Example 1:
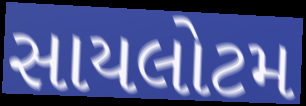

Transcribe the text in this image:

સાયલોટમ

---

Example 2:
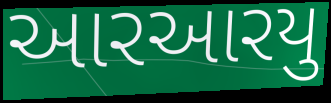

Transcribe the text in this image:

આરઆરયુ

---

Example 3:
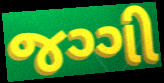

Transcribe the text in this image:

જગ્ગી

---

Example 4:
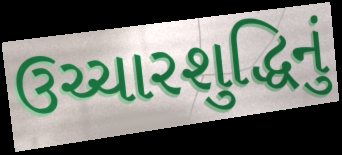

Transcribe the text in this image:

ઉચ્ચારશુદ્ધિનું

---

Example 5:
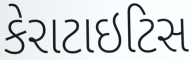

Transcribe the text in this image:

કેરાટાઇટિસ